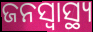
ଜନସ୍ୱାସ୍ଥ୍ୟ